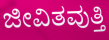
ಜೀವಿತವುತ್ತಿ